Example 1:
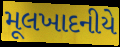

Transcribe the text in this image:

મૂલખાદનીયે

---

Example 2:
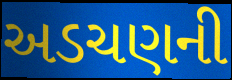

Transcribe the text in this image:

અડચણની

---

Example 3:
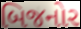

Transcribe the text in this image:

બિજનોર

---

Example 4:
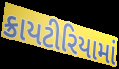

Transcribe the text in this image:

ક્રાયટીરિયામાં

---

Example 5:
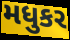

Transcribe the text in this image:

મધુકર